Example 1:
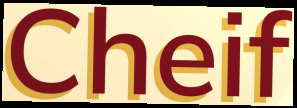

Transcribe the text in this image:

Cheif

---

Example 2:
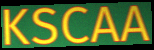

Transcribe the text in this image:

KSCAA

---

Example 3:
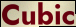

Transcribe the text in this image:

Cubic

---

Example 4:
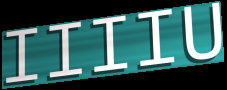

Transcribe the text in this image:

IIIIU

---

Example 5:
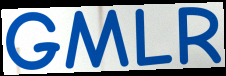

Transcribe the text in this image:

GMLR